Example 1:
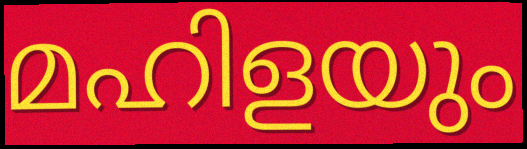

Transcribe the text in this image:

മഹിളയും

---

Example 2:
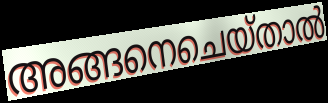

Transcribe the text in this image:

അങ്ങനെചെയ്താൽ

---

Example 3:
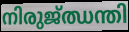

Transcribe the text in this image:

നിരുജ്ഝന്തി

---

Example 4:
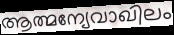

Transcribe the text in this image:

ആത്മന്യേവാഖിലം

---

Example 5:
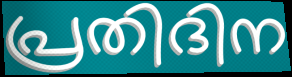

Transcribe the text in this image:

പ്രതിദിന